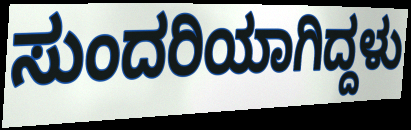
ಸುಂದರಿಯಾಗಿದ್ದಳು